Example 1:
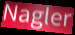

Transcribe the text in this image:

Nagler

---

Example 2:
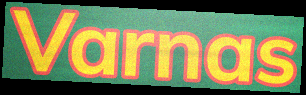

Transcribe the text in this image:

Varnas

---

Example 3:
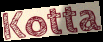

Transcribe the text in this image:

Kotta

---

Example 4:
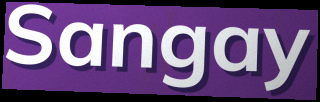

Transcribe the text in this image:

Sangay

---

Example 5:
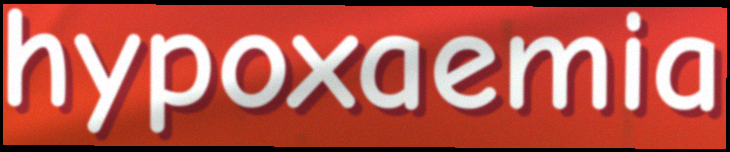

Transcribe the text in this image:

hypoxaemia